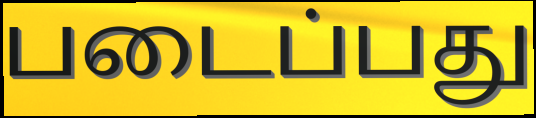
படைப்பது